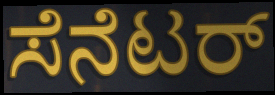
ಸೆನೆಟರ್